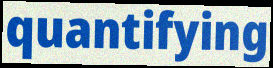
quantifying